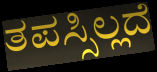
ತಪಸ್ಸಿಲ್ಲದೆ